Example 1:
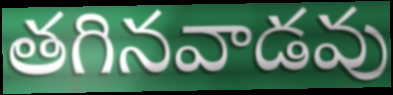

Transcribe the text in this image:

తగినవాడవు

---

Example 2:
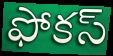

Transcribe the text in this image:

ఫోకస్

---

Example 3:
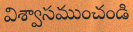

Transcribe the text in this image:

విశ్వాసముంచండి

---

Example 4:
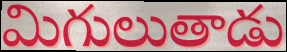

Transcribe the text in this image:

మిగులుతాడు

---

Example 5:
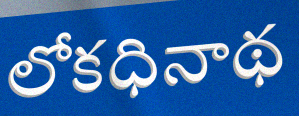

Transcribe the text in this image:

లోకధినాథ